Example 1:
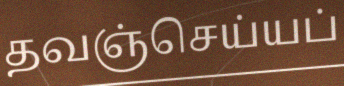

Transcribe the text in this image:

தவஞ்செய்யப்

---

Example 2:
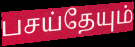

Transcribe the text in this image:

பசய்தேயும்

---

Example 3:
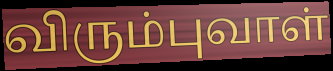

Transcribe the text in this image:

விரும்புவாள்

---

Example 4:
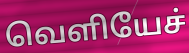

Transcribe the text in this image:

வெளியேச்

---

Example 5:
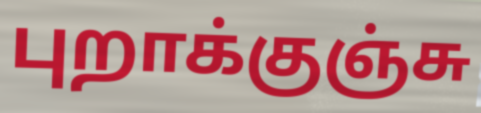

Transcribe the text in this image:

புறாக்குஞ்சு